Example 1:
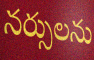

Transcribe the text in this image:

నర్సులను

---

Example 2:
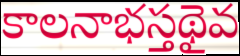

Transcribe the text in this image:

కాలనాభస్తథైవ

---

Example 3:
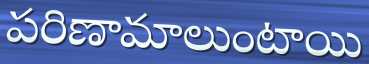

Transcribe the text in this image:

పరిణామాలుంటాయి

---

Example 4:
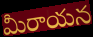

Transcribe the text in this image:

మీరాయన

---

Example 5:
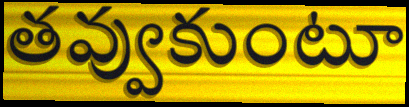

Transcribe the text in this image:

తవ్వుకుంటూ